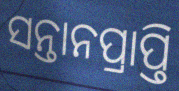
ସନ୍ତାନପ୍ରାପ୍ତି